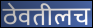
ठेवतीलच